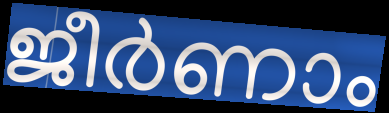
ജീർണാം